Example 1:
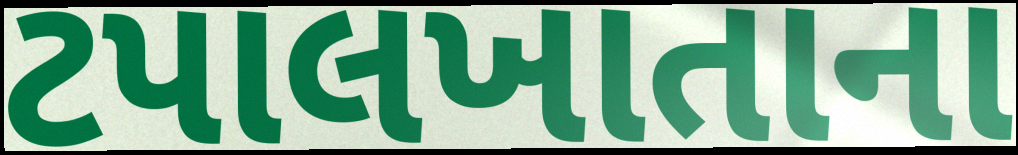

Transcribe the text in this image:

ટપાલખાતાના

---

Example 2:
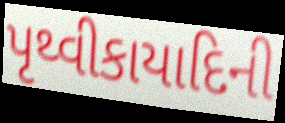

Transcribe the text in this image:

પૃથ્વીકાયાદિની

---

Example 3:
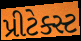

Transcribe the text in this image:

પ્રીટેક્સ્ટ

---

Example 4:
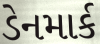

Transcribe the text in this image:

ડેનમાર્ક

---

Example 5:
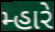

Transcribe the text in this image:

મ્હારે